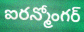
ఐరన్మోంగర్